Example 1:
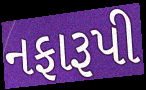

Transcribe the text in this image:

નફારૂપી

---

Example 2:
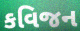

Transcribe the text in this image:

કવિજન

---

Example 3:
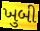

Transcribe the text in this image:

ખુબી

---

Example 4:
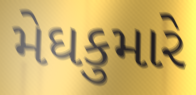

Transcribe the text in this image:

મેઘકુમારે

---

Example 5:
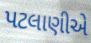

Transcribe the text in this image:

પટલાણીએ